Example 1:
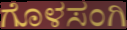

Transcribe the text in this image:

ಗೊಳಸಂಗಿ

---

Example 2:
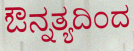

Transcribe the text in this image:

ಔನ್ನತ್ಯದಿಂದ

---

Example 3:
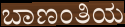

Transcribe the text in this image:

ಬಾಣಂತಿಯ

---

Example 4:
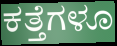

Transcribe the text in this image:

ಕತ್ತೆಗಳೂ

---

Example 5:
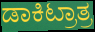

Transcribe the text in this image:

ಡಾಕಿಟ್ರಾತ್ರ